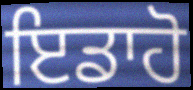
ਇਡਾਹੋ